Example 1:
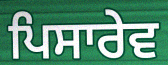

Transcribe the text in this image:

ਪਿਸਾਰੇਵ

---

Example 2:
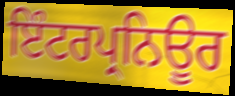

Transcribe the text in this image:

ਇੰਟਰਪ੍ਰਨਿਊਰ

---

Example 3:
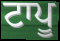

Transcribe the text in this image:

ਟਾਪੂ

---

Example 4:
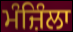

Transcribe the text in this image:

ਮੰਜ਼ਿੰਲਾ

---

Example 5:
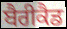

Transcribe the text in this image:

ਬੈਰੀਕੈਡ